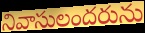
నివాసులందరును